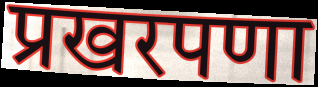
प्रखरपणा